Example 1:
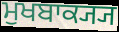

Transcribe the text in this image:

ਮੁਖਬਾਕ੍ਯ੍ਯ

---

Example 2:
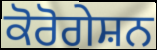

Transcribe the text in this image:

ਕੋਰੋਗੇਸ਼ਨ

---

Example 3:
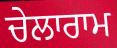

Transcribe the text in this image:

ਚੇਲਾਰਾਮ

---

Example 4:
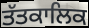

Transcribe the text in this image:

ਤੱਤਕਾਲਿਕ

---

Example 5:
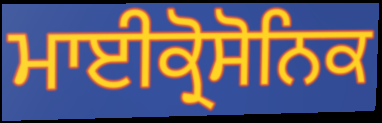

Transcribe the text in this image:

ਮਾਈਕ੍ਰੋਸੋਨਿਕ